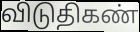
விடுதிகண்